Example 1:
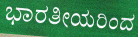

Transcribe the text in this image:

ಭಾರತೀಯರಿಂದ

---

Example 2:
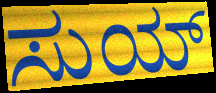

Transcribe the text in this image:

ಸುಯ್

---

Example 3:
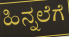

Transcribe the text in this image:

ಹಿನ್ನಲೆಗೆ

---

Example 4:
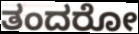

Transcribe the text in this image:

ತಂದರೋ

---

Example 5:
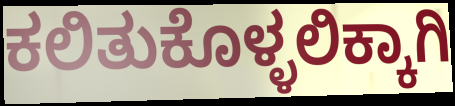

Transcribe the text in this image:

ಕಲಿತುಕೊಳ್ಳಲಿಕ್ಕಾಗಿ